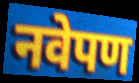
नवेपण